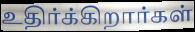
உதிர்க்கிறார்கள்